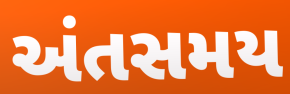
અંતસમય